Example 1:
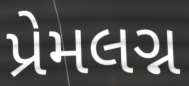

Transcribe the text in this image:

પ્રેમલગ્ન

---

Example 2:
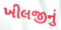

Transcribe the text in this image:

ખીલજીનું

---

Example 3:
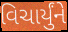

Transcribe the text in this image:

વિચાર્યુંને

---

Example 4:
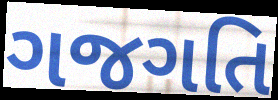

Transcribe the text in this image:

ગજગતિ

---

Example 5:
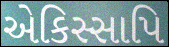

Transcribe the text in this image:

એકિસ્સાપિ